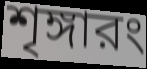
শৃঙ্গারং